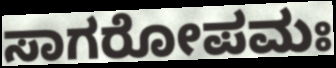
ಸಾಗರೋಪಮಃ